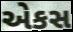
એકસ